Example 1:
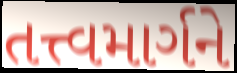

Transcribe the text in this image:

તત્ત્વમાર્ગને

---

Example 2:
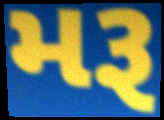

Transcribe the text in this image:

મરૂ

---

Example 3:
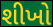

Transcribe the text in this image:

શીખો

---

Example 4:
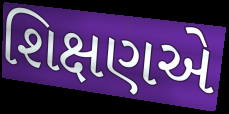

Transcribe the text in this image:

શિક્ષણએ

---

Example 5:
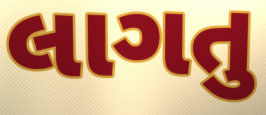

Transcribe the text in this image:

લાગતુ